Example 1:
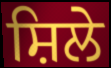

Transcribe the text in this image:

ਸ਼ਿਲੇ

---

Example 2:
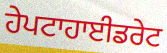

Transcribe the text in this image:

ਹੇਪਟਾਹਾਈਡਰੇਟ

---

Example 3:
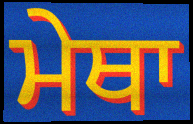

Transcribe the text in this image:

ਮੇਥਾ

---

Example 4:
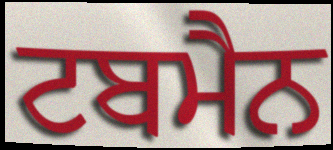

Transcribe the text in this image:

ਟਬਮੈਨ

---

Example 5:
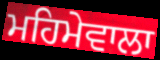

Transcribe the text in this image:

ਮਹਿਮੇਵਾਲਾ